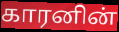
காரனின்